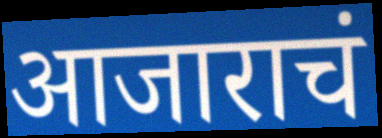
आजाराचं